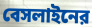
বেসলাইনের